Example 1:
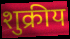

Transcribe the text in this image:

शुक्रीय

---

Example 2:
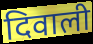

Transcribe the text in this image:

दिवाली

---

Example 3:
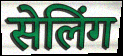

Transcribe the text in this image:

सेलिंग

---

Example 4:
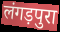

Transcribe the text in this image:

लंगड़पुरा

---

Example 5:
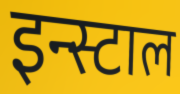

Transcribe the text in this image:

इन्स्टाल